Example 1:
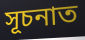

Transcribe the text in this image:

সূচনাত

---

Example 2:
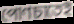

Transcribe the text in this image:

পোণচাতেই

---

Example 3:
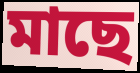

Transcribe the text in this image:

মাছে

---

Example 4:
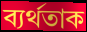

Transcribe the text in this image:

ব্যৰ্থতাক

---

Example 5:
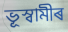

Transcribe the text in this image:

ভূস্বামীৰ